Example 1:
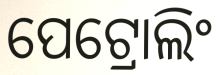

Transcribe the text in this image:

ପେଟ୍ରୋଲିଂ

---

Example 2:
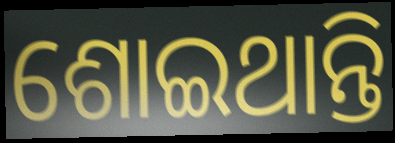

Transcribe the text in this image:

ଶୋଇଥାନ୍ତି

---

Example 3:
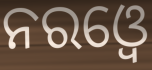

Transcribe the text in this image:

ନରଓ୍ୱେ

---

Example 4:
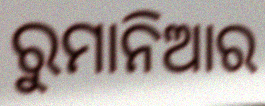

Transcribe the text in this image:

ରୁମାନିଆର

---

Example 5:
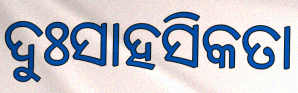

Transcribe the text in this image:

ଦୁଃସାହସିକତା